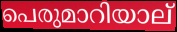
പെരുമാറിയാല്